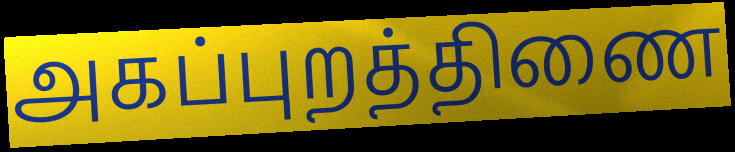
அகப்புறத்திணை